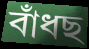
বাঁধছ